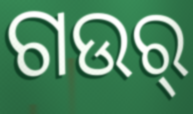
ଗଉର୍